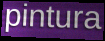
pintura